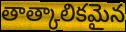
తాత్కాలికమైన